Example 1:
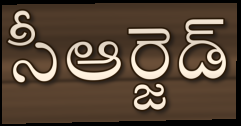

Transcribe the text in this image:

సీఆర్జెడ్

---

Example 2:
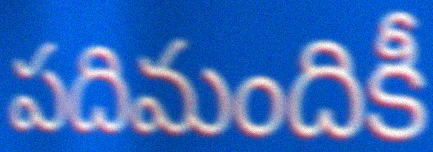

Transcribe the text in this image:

పదిమందికీ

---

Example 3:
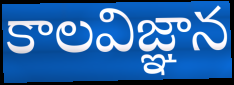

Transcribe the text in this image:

కాలవిజ్ఞాన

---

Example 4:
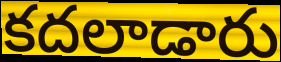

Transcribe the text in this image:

కదలాడారు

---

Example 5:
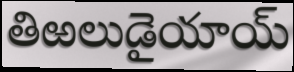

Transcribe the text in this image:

తిఱలుడైయాయ్